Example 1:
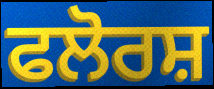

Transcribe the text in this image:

ਫਲੋਰਸ਼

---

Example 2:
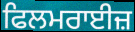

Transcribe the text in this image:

ਫਿਲਮਰਾਈਜ਼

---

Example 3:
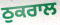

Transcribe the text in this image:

ਠੁਕਰਾਲ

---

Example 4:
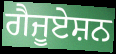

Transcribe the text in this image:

ਗੈਜੂਏਸ਼ਨ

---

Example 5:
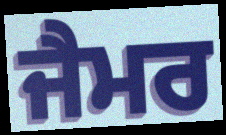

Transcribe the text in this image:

ਜੈਮਰ